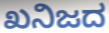
ಖನಿಜದ